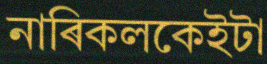
নাৰিকলকেইটা